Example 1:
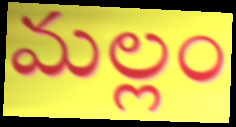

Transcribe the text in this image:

మల్లం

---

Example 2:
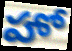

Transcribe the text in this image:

హో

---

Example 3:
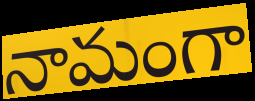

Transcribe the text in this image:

నామంగా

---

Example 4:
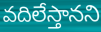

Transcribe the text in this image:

వదిలేస్తానని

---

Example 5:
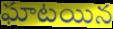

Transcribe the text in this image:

ఘాటయిన